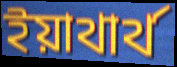
ইয়াথার্থ